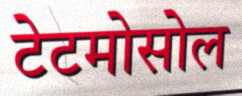
टेटमोसोल